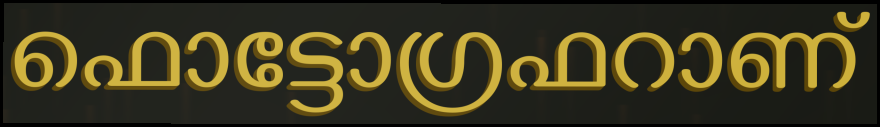
ഫൊട്ടോഗ്രഫറാണ്